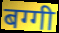
बग्गी